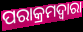
ପରାକ୍ରମଦ୍ୱାରା